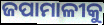
ଜପାମାଳୀକୁ